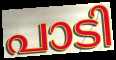
പാടി